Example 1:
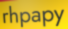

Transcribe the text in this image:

rhpapy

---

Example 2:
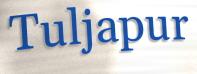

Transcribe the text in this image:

Tuljapur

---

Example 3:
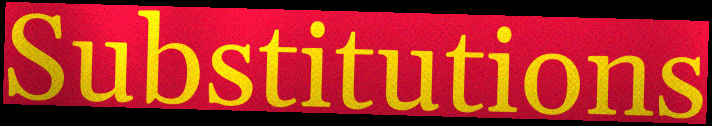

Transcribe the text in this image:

Substitutions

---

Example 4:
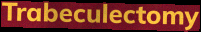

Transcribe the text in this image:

Trabeculectomy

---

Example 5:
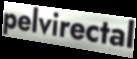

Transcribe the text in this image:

pelvirectal